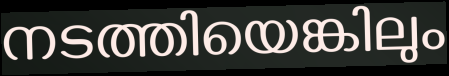
നടത്തിയെങ്കിലും